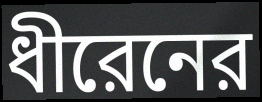
ধীরেনের